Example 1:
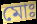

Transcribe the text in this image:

মোঃ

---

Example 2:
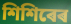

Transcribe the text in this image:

শিশিৰেৰ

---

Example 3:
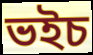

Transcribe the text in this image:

ভইচ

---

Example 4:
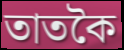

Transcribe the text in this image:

তাতকৈ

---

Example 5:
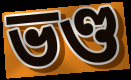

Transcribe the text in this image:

ভণ্ড